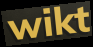
wikt